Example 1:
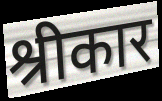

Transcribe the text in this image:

श्रीकार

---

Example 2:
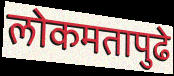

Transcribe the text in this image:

लोकमतापुढे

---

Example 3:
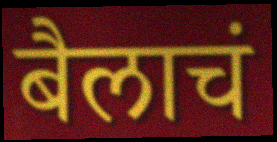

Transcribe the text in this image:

बैलाचं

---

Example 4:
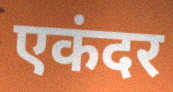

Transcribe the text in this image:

एकंदर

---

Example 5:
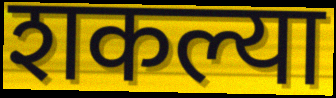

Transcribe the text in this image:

शकल्या